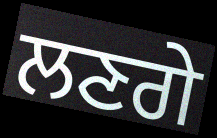
ਲਣਗੇ